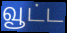
வூட்ட